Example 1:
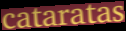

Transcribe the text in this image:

cataratas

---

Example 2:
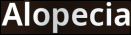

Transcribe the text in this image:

Alopecia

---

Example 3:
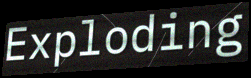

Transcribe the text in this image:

Exploding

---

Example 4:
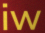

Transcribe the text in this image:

iw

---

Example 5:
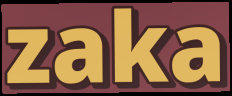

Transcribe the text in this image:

zaka